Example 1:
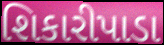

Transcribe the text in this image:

શિકારીપાડા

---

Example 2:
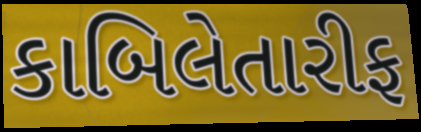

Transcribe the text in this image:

કાબિલેતારીફ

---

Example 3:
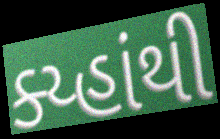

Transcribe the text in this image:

ક્ય્હાંથી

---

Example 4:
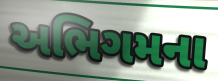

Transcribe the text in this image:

અભિગમના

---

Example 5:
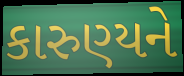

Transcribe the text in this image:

કારુણ્યને